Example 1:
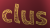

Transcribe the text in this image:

clus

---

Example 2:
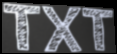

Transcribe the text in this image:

TXT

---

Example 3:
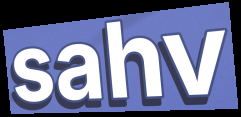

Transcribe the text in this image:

sahv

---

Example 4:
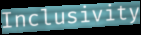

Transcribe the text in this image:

Inclusivity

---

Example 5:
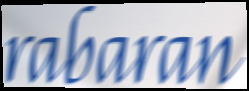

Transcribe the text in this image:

rabaran